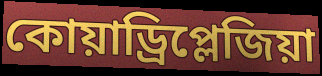
কোয়াড্রিপ্লেজিয়া